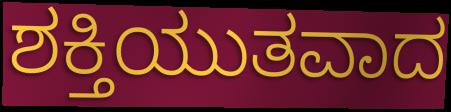
ಶಕ್ತಿಯುತವಾದ